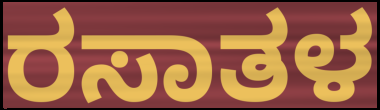
ರಸಾತಳ